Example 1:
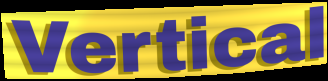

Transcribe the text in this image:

Vertical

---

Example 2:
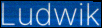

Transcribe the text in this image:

Ludwik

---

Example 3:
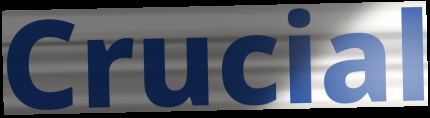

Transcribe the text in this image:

Crucial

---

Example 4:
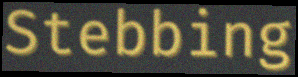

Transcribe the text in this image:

Stebbing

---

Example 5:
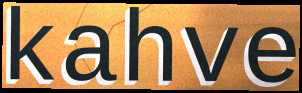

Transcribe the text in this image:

kahve